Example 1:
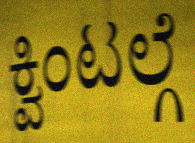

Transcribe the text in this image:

ಕ್ವಿಂಟಲ್ಗೆ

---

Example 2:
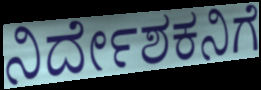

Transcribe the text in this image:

ನಿರ್ದೇಶಕನಿಗೆ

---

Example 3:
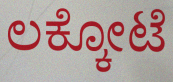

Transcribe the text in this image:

ಲಕ್ಕೋಟೆ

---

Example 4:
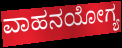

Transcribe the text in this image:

ವಾಹನಯೋಗ್ಯ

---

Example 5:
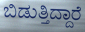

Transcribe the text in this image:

ಬಿಡುತ್ತಿದ್ದಾರೆ